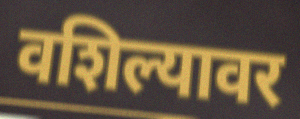
वशिल्यावर